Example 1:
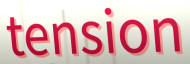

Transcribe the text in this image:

tension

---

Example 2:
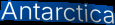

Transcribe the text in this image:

Antarctica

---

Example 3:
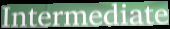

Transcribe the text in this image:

Intermediate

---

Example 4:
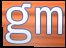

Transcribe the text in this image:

gm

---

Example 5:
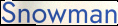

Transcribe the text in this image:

Snowman